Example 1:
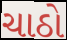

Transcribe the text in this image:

ચાઠો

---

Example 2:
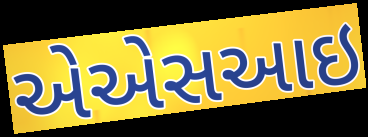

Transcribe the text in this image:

એએસઆઇ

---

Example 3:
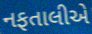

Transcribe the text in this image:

નફતાલીએ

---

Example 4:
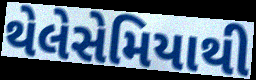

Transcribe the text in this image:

થેલેસેમિયાથી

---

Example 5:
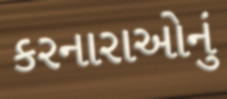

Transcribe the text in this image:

કરનારાઓનું